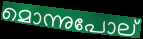
മൊന്നുപോല്